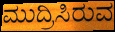
ಮುದ್ರಿಸಿರುವ